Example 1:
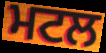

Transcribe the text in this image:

ਮਟਲ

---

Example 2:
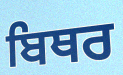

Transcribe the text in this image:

ਬਿਥਰ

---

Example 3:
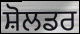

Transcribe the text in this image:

ਸ਼ੋਲਡਰ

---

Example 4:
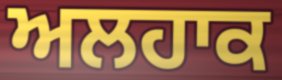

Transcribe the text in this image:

ਅਲਹਾਕ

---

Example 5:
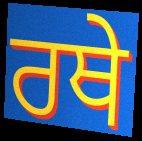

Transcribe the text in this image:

ਰਥੇ